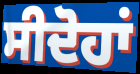
ਸੀਦੋਹਾਂ